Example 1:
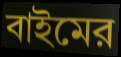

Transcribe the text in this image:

বাইমের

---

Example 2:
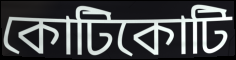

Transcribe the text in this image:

কোটিকোটি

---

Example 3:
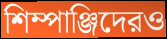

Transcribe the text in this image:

শিম্পাঞ্জিদেরও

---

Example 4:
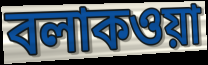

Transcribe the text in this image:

বলাকওয়া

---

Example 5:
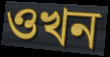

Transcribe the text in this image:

ওখন